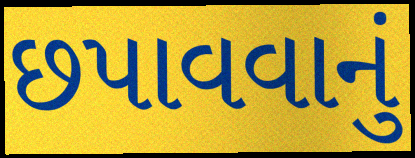
છપાવવાનું